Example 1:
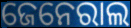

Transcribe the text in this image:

ଜେନେରାଲ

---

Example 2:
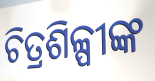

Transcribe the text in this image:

ଚିତ୍ରଶିଳ୍ପୀଙ୍କ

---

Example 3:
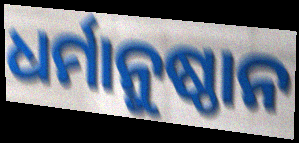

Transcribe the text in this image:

ଧର୍ମାନୁଷ୍ଠାନ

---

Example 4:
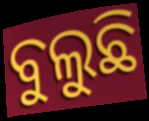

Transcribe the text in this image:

ବୁଲୁଛି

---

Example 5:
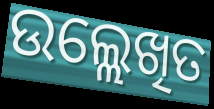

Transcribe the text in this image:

ଉଲ୍ଲେଖିତ